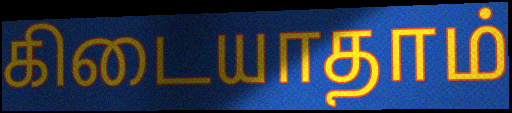
கிடையாதாம்